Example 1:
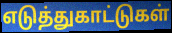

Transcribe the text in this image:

எடுத்துகாட்டுகள்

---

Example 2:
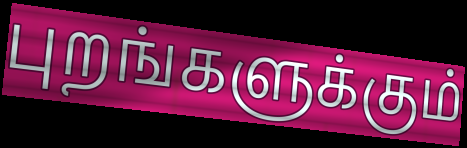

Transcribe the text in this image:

புறங்களுக்கும்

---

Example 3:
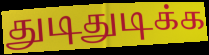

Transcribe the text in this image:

துடிதுடிக்க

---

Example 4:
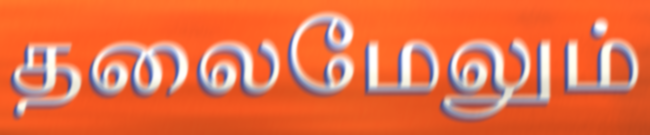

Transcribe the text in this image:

தலைமேலும்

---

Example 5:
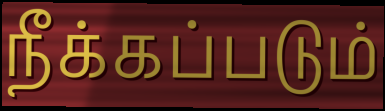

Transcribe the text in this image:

நீக்கப்படும்